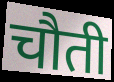
चौती